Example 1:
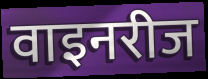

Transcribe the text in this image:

वाइनरीज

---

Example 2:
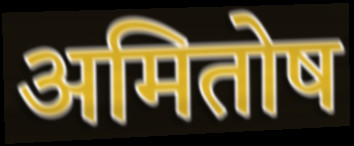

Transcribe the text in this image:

अमितोष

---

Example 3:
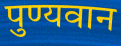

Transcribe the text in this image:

पुण्यवान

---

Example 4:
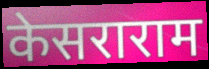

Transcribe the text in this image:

केसराराम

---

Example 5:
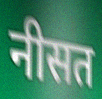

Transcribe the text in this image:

नीसत